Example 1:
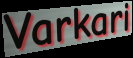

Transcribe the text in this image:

Varkari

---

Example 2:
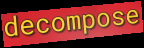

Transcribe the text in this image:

decompose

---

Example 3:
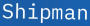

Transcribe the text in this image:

Shipman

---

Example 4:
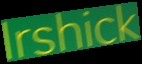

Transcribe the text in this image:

Irshick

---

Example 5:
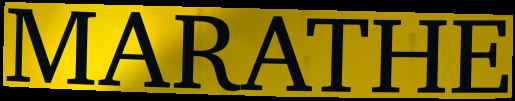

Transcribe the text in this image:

MARATHE